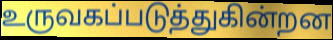
உருவகப்படுத்துகின்றன